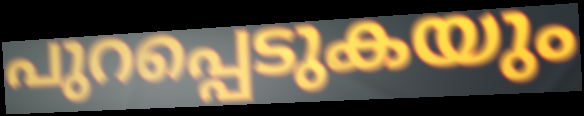
പുറപ്പെടുകയും